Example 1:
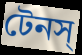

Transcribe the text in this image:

টেনস্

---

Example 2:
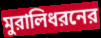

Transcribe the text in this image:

মুরালিধরনের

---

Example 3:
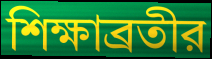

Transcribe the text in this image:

শিক্ষাব্রতীর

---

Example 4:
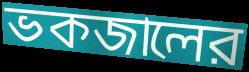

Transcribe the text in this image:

ভকজালের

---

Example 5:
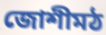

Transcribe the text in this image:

জোশীমঠ